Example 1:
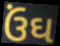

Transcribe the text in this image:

ઉંઘ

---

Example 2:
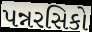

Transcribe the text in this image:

પન્નરસિકો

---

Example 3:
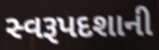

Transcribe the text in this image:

સ્વરૂપદશાની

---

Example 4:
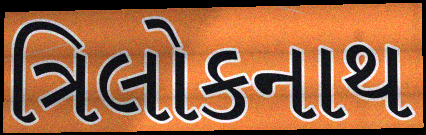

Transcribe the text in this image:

ત્રિલોકનાથ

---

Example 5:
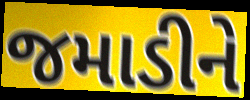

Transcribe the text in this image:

જમાડીને